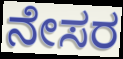
ನೇಸರ